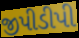
જીપીડીપી